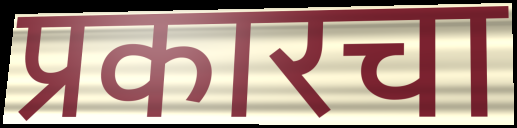
प्रकारचा